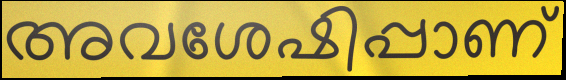
അവശേഷിപ്പാണ്